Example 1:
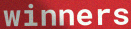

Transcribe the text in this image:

winners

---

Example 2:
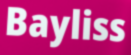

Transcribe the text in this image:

Bayliss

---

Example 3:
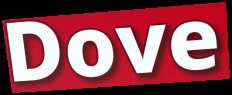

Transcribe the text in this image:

Dove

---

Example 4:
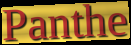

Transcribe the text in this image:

Panthe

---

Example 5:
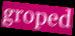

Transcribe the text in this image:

groped